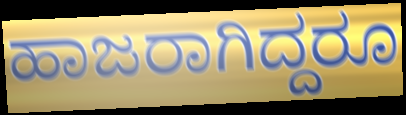
ಹಾಜರಾಗಿದ್ದರೂ